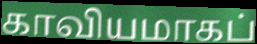
காவியமாகப்